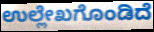
ಉಲ್ಲೇಖಗೊಂಡಿದೆ